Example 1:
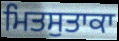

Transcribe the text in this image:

ਮਿਤਸੁਤਾਕਾ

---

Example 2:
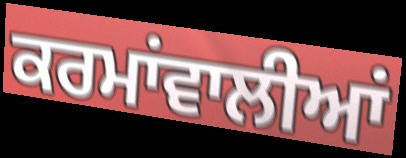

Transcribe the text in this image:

ਕਰਮਾਂਵਾਲੀਆਂ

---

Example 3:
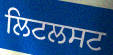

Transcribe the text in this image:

ਲਿਟਲਸਟ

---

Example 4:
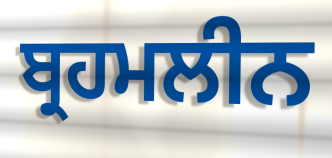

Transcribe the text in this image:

ਬ੍ਰਹਮਲੀਨ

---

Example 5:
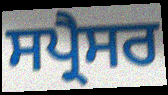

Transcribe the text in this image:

ਸਪ੍ਰੈਸਰ